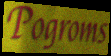
Pogroms